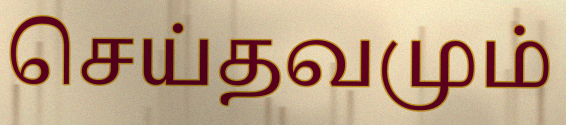
செய்தவமும்